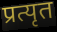
प्रत्यृत